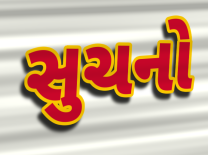
સુચનો